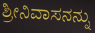
ಶ್ರೀನಿವಾಸನನ್ನು